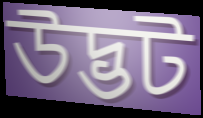
উদ্ভট